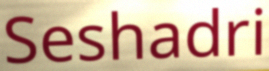
Seshadri